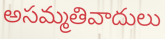
అసమ్మతివాదులు